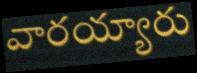
వారయ్యారు